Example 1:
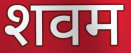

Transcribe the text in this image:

शवम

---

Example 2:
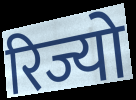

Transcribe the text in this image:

रिज्यो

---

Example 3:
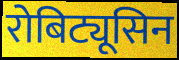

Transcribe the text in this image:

रोबिट्यूसिन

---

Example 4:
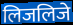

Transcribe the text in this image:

लिजलिजे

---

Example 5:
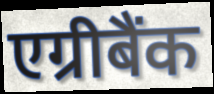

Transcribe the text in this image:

एग्रीबैंक